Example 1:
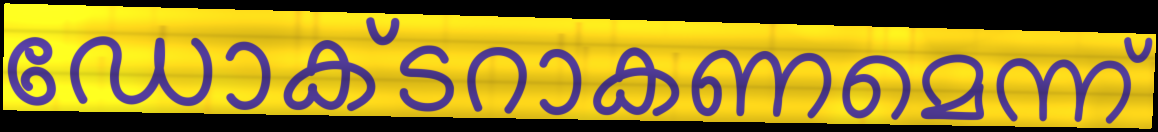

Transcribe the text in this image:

ഡോക്ടറാകണമെന്ന്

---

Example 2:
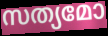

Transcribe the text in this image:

സത്യമോ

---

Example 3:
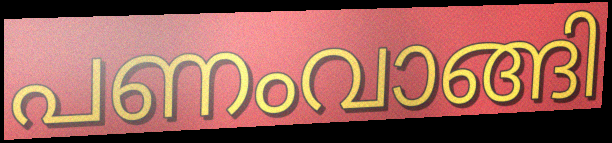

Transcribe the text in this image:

പണംവാങ്ങി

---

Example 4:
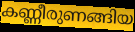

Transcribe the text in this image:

കണ്ണീരുണങ്ങിയ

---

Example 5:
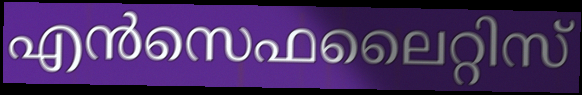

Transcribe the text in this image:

എൻസെഫലൈറ്റിസ്